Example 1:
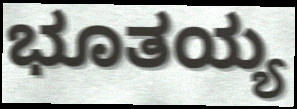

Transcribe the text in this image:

ಭೂತಯ್ಯ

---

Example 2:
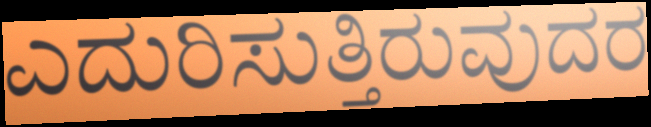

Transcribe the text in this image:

ಎದುರಿಸುತ್ತಿರುವುದರ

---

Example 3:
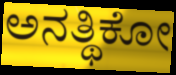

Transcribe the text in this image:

ಅನತ್ಥಿಕೋ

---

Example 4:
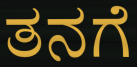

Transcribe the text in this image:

ತನಗೆ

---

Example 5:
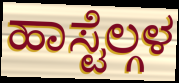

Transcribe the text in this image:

ಹಾಸ್ಟೆಲ್ಗಳ